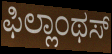
ಫಿಲ್ಲಾಂಥಸ್